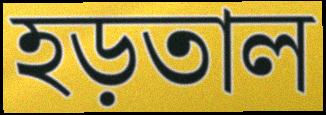
হড়তাল